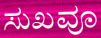
ಸುಖವೂ